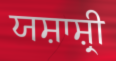
ਯਸ਼ਾਸ਼੍ਰੀ